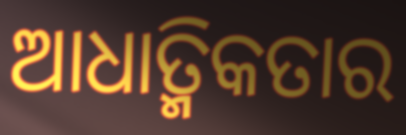
ଆଧାତ୍ମିକତାର